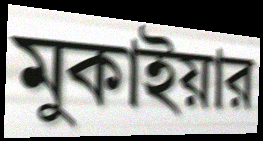
মুকাইয়ার